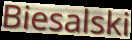
Biesalski